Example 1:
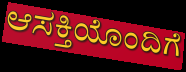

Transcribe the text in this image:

ಆಸಕ್ತಿಯೊಂದಿಗೆ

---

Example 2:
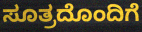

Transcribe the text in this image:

ಸೂತ್ರದೊಂದಿಗೆ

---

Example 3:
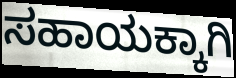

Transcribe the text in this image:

ಸಹಾಯಕ್ಕಾಗಿ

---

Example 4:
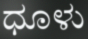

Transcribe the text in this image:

ಧೂಳು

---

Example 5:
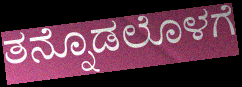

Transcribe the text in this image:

ತನ್ನೊಡಲೊಳಗೆ